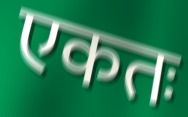
एकतः